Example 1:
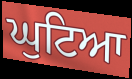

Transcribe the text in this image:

ਘੁਟਿਆ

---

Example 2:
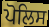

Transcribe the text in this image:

ਪੋਲਿਸ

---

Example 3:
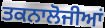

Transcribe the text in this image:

ਤਕਨਾਲੋਜੀਆਂ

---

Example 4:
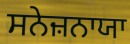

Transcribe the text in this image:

ਸਨੇਜ਼ਨਾਯਾ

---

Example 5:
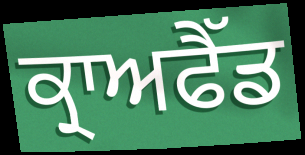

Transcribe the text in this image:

ਕ੍ਰਾਅਫੈੱਡ